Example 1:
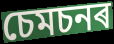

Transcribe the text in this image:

চেমচনৰ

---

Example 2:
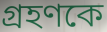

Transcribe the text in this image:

গ্ৰহণকে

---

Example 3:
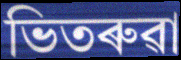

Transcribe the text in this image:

ভিতৰুৱা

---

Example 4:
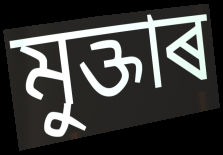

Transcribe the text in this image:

মুক্তাৰ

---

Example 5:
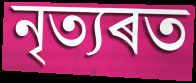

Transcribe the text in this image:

নৃত্যৰত